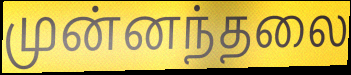
முன்னந்தலை